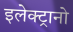
इलेक्ट्रानो